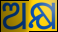
ଅକ୍ଷ